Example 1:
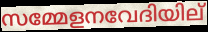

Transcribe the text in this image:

സമ്മേളനവേദിയില്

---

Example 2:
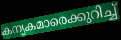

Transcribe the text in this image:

കന്യകമാരെക്കുറിച്ച്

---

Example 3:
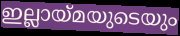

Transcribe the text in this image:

ഇല്ലായ്മയുടെയും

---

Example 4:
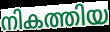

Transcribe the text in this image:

നികത്തിയ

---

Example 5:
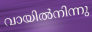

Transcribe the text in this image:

വായിൽനിന്നു